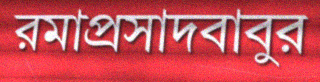
রমাপ্রসাদবাবুর